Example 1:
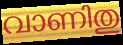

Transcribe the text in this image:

വാണിതു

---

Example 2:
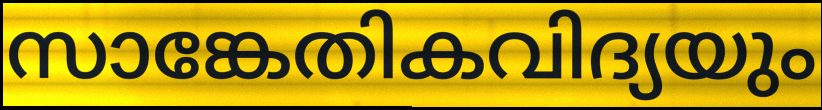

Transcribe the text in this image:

സാങ്കേതികവിദ്യയും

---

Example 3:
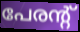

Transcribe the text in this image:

പേരന്റ്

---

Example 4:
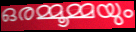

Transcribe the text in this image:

ഒരമ്മൂമ്മയും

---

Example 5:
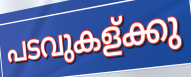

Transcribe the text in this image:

പടവുകള്ക്കു